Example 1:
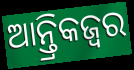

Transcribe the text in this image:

ଆନ୍ତ୍ରିକଜ୍ଵର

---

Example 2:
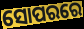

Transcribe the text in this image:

ସୋପରରେ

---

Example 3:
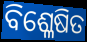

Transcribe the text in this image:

ବିଶ୍ଳେଷିତ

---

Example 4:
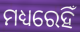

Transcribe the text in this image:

ମଧ୍ୟରେହିଁ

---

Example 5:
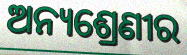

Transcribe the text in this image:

ଅନ୍ୟଶ୍ରେଣୀର